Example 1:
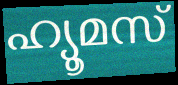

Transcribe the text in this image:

ഹ്യൂമസ്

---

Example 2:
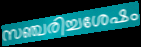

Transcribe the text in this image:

സഞ്ചരിച്ചശേഷം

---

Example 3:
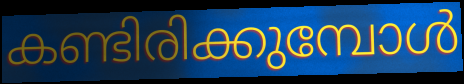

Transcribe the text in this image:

കണ്ടിരിക്കുമ്പോൾ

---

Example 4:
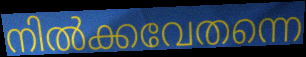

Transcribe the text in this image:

നിൽക്കവേതന്നെ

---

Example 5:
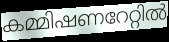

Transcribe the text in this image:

കമ്മിഷണറേറ്റിൽ